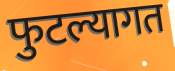
फुटल्यागत